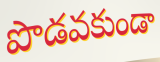
పొడవకుండా